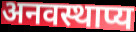
अनवस्थाप्य